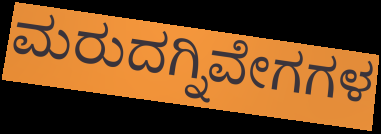
ಮರುದಗ್ನಿವೇಗಗಳ